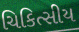
ચિકિત્સીય